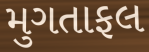
મુગતાફલ